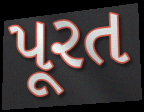
પૂરત